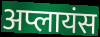
अप्‍लायंस